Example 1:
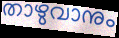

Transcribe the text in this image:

താഴുവാനും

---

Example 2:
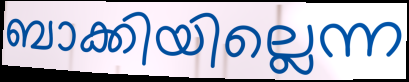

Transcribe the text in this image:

ബാക്കിയില്ലെന്ന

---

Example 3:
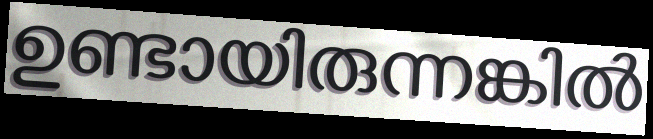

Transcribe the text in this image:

ഉണ്ടായിരുന്നങ്കിൽ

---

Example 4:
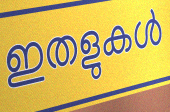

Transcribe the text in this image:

ഇതളുകൾ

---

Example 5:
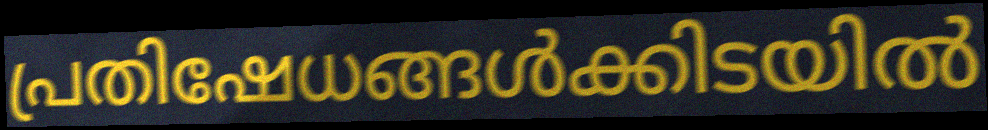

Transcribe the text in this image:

പ്രതിഷേധങ്ങൾക്കിടയിൽ